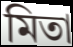
মিতা